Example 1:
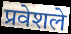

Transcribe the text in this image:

प्रवेशले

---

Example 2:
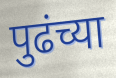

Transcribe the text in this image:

पुढंच्या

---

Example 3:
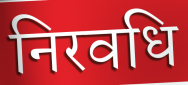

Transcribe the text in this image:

निरवधि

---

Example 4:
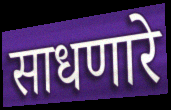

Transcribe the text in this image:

साधणारे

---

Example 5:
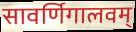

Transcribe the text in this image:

सावर्णिगालवम्